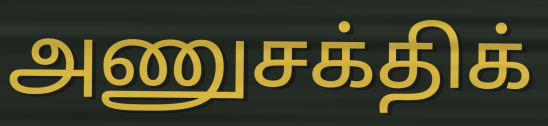
அணுசக்திக்